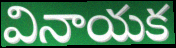
వినాయక